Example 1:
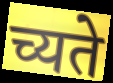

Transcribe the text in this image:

च्यते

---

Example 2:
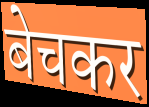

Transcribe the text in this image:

बेचकर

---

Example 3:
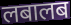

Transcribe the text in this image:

लबालब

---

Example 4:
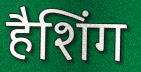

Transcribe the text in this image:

हैशिंग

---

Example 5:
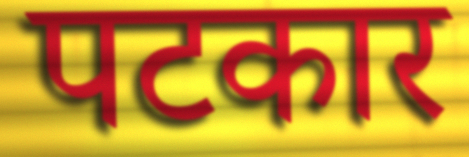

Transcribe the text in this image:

पटकार